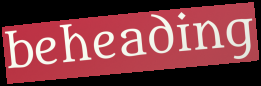
beheading